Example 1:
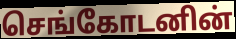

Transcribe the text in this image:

செங்கோடனின்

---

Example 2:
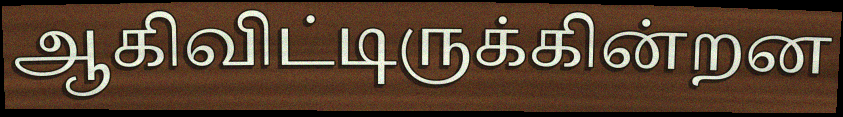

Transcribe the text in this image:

ஆகிவிட்டிருக்கின்றன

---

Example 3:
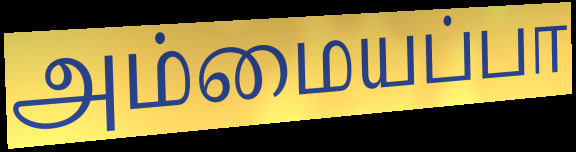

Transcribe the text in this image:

அம்மையப்பா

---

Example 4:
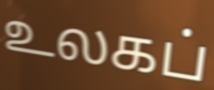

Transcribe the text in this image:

உலகப்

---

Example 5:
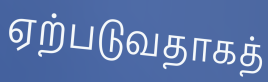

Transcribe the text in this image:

ஏற்படுவதாகத்